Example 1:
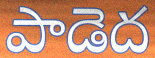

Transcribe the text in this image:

పాడెద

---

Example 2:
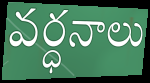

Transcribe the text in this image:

వర్ధనాలు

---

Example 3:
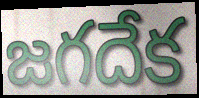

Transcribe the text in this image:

జగదేక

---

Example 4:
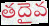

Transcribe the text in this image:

తదైవ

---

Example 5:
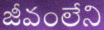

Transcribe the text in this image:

జీవంలేని